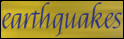
earthquakes